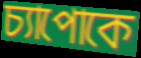
চ্যাপোকে